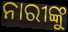
ନାରୀଙ୍କୁ